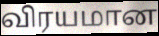
விரயமான